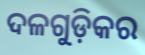
ଦଳଗୁଡ଼ିକର